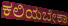
ಕಲಿಯಬೇಕಾ